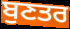
ਬੁਣਤਰ